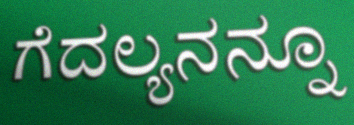
ಗೆದಲ್ಯನನ್ನೂ